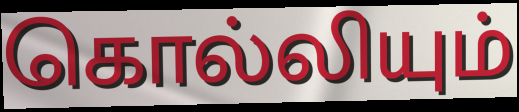
கொல்லியும்